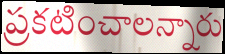
ప్రకటించాలన్నారు